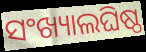
ସଂଖ୍ୟାଲଘିଷ୍ଠ